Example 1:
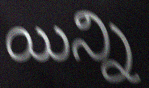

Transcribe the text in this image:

యిన్ని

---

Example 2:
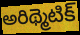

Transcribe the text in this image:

అరిథ్మెటిక్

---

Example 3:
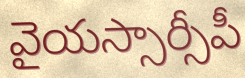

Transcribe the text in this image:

వైయస్సార్సీపీ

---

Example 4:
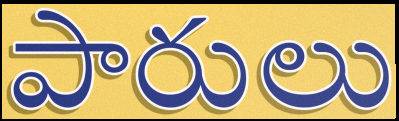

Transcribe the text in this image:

పారులు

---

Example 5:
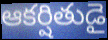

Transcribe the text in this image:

ఆకర్షితుడై